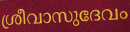
ശ്രീവാസുദേവം